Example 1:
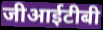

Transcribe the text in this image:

जीआईटीबी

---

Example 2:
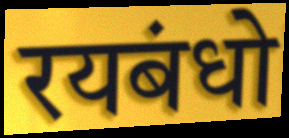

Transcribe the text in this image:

रयबंधो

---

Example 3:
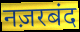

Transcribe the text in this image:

नज़रबंद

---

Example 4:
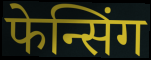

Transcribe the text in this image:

फेन्सिंग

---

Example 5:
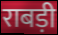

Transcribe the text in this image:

राबड़ी